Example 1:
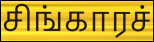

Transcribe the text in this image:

சிங்காரச்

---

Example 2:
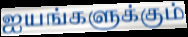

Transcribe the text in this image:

ஐயங்களுக்கும்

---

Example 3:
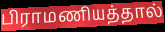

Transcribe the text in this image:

பிராமணியத்தால்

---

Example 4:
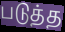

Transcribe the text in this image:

படுத்த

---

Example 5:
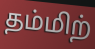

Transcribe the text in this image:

தம்மிற்